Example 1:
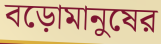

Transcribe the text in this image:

বড়োমানুষের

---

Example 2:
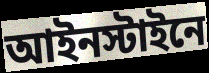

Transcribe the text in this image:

আইনস্টাইনে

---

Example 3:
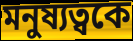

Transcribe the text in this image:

মনুষ্যত্বকে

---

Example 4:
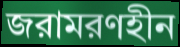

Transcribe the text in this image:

জরামরণহীন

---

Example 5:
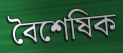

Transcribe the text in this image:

বৈশেষিক